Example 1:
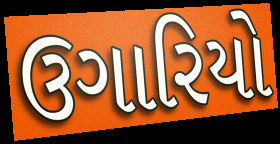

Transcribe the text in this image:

ઉગારિયો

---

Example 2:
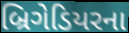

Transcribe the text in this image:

બ્રિગેડિયરના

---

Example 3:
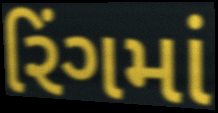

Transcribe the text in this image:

રિંગમાં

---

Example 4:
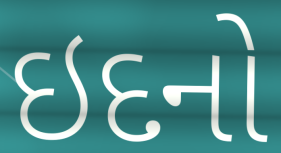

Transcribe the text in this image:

ઇદનો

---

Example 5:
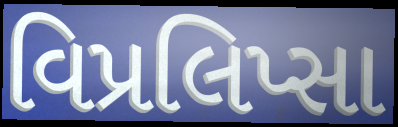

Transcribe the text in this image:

વિપ્રલિપ્સા